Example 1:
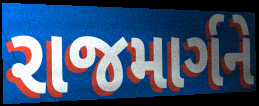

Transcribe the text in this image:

રાજમાર્ગને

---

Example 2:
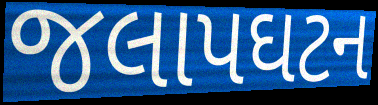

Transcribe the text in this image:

જલાપઘટન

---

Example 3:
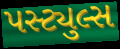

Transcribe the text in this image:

પસ્ટ્યુલ્સ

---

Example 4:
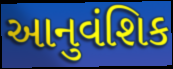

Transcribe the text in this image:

આનુવંશિક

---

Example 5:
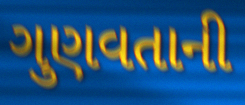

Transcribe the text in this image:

ગુણવતાની